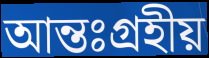
আন্তঃগ্রহীয়